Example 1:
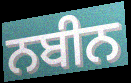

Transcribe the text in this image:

ਨਬੀਨ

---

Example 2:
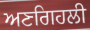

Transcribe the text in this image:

ਅਣਗਿਹਲੀ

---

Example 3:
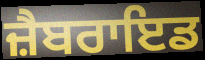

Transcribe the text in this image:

ਜ਼ੈਬਰਾਇਡ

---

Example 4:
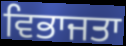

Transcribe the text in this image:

ਵਿਭਾਜਤਾ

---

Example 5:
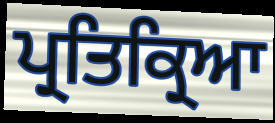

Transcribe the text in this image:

ਪ੍ਰਤਿਕ੍ਰਿਆ